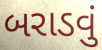
બરાડવું